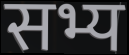
सभ्य